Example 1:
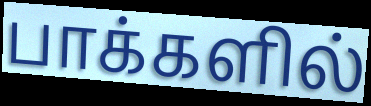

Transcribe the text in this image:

பாக்களில்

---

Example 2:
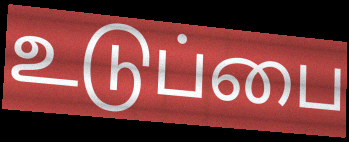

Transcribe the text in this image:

உடுப்பை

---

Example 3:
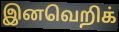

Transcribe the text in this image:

இனவெறிக்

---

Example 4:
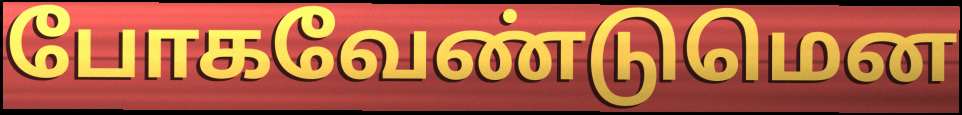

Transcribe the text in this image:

போகவேண்டுமென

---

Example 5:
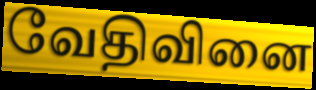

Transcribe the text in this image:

வேதிவினை